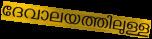
ദേവാലയത്തിലുള്ള